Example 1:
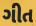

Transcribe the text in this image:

ગીત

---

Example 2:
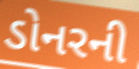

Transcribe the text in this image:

ડોનરની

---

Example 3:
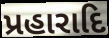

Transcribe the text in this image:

પ્રહારાદિ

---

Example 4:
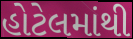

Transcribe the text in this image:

હોટેલમાંથી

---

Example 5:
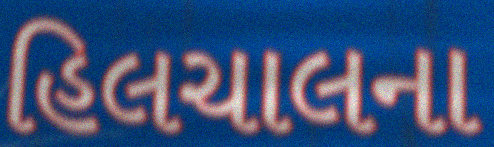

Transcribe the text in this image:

હિલચાલના